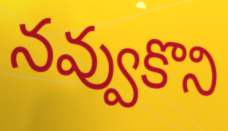
నవ్వుకొని